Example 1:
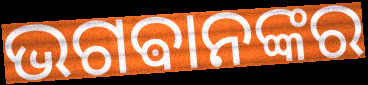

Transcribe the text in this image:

ଭଗଵାନଙ୍କର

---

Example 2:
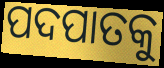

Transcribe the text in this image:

ପଦପାତକୁ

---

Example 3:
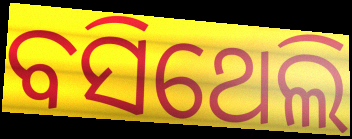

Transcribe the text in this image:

ବସିଥେଲି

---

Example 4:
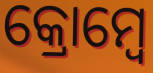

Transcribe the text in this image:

କ୍ରୋମ୍ବେ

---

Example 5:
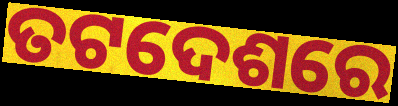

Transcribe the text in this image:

ତଟଦେଶରେ